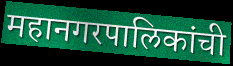
महानगरपालिकांची